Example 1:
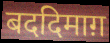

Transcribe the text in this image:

बददिमाग़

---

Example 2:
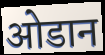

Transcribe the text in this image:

ओडान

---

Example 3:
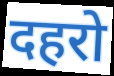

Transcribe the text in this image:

दहरो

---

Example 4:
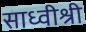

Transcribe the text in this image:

साध्वीश्री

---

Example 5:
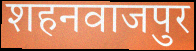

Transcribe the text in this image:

शहनवाजपुर